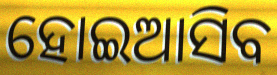
ହୋଇଆସିବ